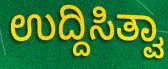
ಉದ್ದಿಸಿತ್ವಾ